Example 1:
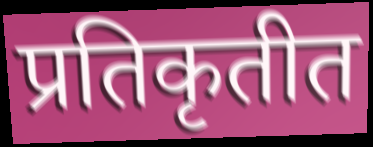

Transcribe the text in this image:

प्रतिकृतीत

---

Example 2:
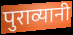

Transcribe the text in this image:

पुराव्यानी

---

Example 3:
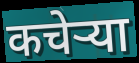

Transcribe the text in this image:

कचेऱ्या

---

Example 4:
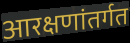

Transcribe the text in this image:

आरक्षणांतर्गत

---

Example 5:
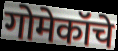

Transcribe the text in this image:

गोमेकॉचे